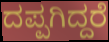
ದಪ್ಪಗಿದ್ದರೆ